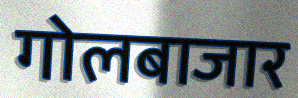
गोलबाजार